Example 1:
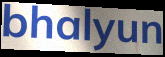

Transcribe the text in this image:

bhalyun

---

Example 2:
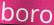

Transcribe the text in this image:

boro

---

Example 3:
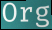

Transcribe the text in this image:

Org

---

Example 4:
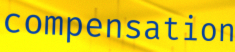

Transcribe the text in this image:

compensation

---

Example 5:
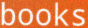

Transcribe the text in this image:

books